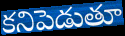
కనిపెడుతూ